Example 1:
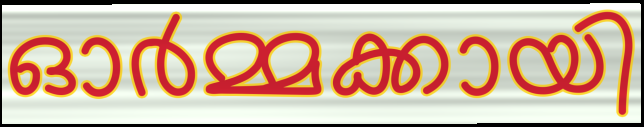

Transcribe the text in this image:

ഓർമ്മക്കായി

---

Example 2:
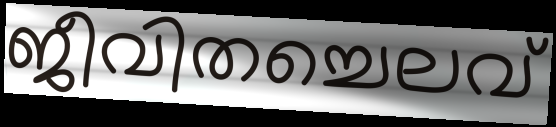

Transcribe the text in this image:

ജീവിതച്ചെലവ്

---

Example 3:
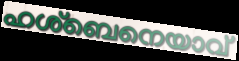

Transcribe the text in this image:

ഹശ്ബെനെയാവ്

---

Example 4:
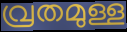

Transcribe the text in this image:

വ്രതമുള്ള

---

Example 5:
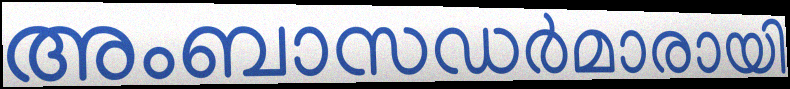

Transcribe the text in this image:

അംബാസഡർമാരായി